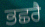
ਭਛਰੈ